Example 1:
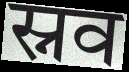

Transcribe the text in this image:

स्नव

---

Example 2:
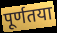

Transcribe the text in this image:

पूर्णतया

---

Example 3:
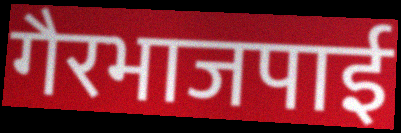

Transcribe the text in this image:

गैरभाजपाई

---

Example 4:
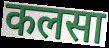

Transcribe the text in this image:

कलसा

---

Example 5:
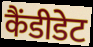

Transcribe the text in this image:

कैंडीडेट